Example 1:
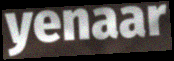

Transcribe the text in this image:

yenaar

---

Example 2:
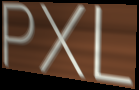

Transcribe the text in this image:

PXL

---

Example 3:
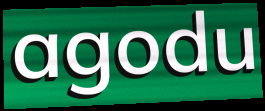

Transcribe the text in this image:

agodu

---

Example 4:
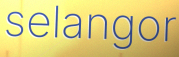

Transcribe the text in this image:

selangor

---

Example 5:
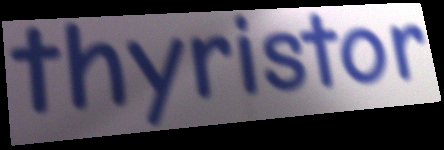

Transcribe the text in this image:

thyristor